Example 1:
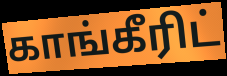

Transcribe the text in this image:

காங்கீரிட்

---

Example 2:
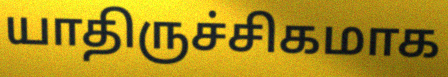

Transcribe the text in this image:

யாதிருச்சிகமாக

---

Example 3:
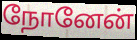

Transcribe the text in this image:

நோனேன்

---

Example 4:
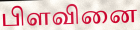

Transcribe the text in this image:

பிளவினை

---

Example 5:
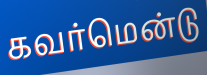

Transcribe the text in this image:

கவர்மென்டு